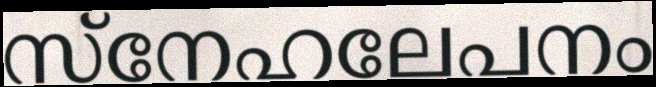
സ്നേഹലേപനം